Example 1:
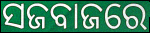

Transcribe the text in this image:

ସଜବାଜରେ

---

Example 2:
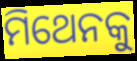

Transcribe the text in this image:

ମିଥେନକୁ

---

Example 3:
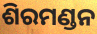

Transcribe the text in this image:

ଶିରମଣ୍ଡନ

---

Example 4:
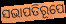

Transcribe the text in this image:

ସଭାପତିରୂପେ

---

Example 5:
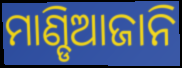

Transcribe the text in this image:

ମାଣ୍ଡିଆଜାନି